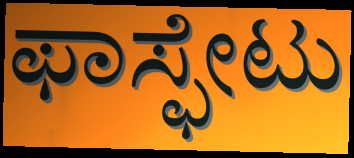
ಫಾಸ್ಫೇಟು